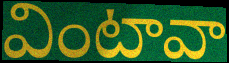
వింటావా